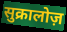
सुक्रालोज़